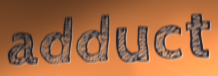
adduct